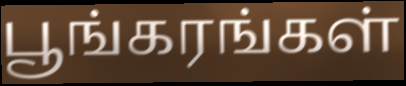
பூங்கரங்கள்